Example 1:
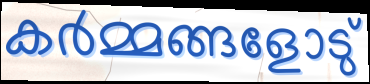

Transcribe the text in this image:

കർമ്മങ്ങളോടു്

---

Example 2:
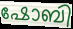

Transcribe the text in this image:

ഷോബി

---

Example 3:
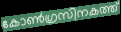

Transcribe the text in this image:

കോൺഗ്രസിനകത്ത്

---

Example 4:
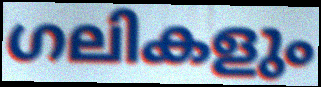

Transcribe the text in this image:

ഗലികളും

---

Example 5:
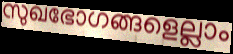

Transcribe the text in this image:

സുഖഭോഗങ്ങളെല്ലാം